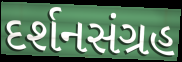
દર્શનસંગ્રહ